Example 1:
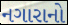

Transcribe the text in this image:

નગારાનો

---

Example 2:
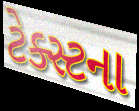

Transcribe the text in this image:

ટેક્સ્ટના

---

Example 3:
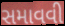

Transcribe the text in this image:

સમાવવી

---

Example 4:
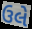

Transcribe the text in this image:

ઉલે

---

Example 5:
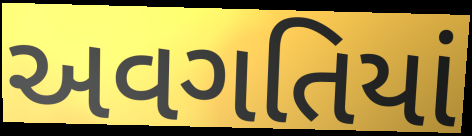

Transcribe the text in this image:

અવગતિયાં